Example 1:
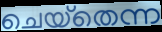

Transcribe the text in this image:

ചെയ്‌തെന്ന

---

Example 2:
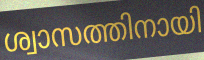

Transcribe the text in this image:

ശ്വാസത്തിനായി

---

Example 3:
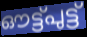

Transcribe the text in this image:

ഔട്ട്പുട്ട്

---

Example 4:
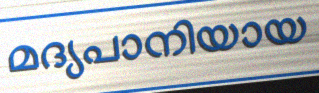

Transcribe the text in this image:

മദ്യപാനിയായ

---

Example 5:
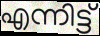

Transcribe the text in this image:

എന്നിട്ട്